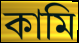
কামি